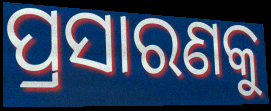
ପ୍ରସାରଣକୁ